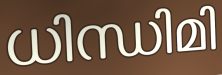
ധിന്ധിമി